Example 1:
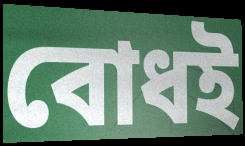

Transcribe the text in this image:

বোধই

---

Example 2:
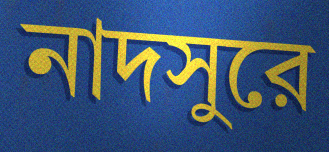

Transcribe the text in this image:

নাদসুরে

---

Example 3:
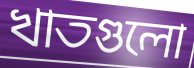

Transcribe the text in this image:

খাতগুলো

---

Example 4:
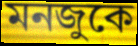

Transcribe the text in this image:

মনজুকে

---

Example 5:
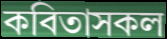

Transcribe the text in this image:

কবিতাসকল